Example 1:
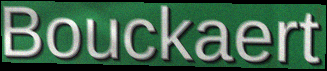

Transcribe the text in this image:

Bouckaert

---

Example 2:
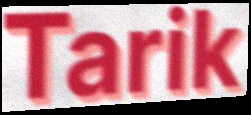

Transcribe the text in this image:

Tarik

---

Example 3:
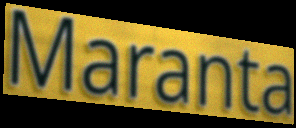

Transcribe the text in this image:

Maranta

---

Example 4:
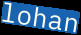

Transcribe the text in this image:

lohan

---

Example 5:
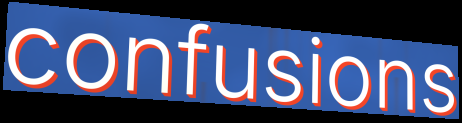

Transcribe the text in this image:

confusions